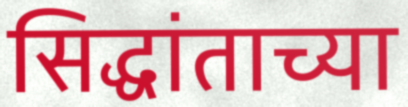
सिद्धांताच्या